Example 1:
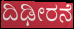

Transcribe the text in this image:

ದಿಢೀರನೆ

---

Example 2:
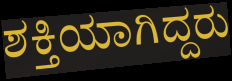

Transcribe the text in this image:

ಶಕ್ತಿಯಾಗಿದ್ದರು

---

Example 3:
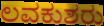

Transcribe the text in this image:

ಲವಕುಶರು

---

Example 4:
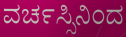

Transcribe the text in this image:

ವರ್ಚಸ್ಸಿನಿಂದ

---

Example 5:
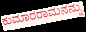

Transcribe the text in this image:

ಕುಮಾರರಾಮನನ್ನು